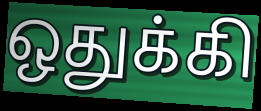
ஒதுக்கி